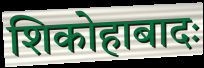
शिकोहाबादः